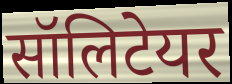
सॉलिटेयर